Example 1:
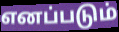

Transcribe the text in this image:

எனப்படும்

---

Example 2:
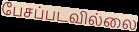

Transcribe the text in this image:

பேசப்படவில்லை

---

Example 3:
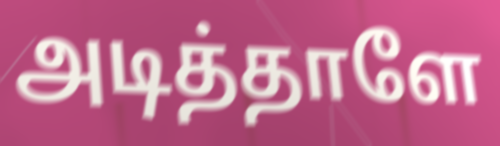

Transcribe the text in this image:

அடித்தாளே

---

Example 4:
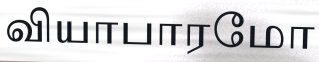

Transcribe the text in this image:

வியாபாரமோ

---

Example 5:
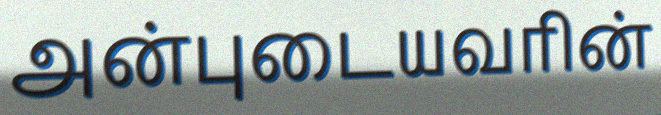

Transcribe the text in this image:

அன்புடையவரின்